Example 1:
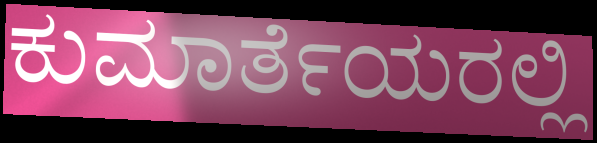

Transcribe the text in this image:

ಕುಮಾರ್ತೆಯರಲ್ಲಿ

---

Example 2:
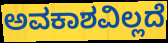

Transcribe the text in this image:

ಅವಕಾಶವಿಲ್ಲದೆ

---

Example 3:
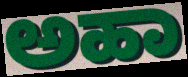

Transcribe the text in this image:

ಅಹಾ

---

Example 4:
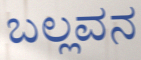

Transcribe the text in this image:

ಬಲ್ಲವನ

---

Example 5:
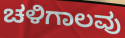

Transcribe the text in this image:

ಚಳಿಗಾಲವು